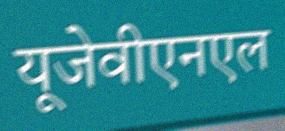
यूजेवीएनएल